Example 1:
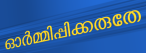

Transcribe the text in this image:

ഓർമ്മിപ്പിക്കരുതേ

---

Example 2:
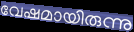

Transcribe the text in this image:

വേഷമായിരുന്നു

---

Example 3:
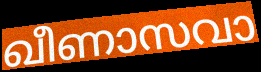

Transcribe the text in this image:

ഖീണാസവാ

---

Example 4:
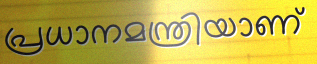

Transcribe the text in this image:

പ്രധാനമന്ത്രിയാണ്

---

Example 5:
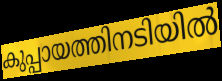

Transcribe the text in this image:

കുപ്പായത്തിനടിയിൽ